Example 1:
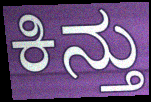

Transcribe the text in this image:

ಕಿನ್ತು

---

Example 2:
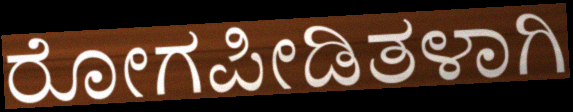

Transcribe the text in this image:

ರೋಗಪೀಡಿತಳಾಗಿ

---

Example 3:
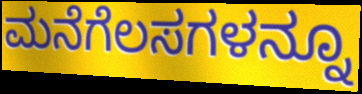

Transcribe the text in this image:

ಮನೆಗೆಲಸಗಳನ್ನೂ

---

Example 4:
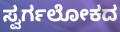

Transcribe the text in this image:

ಸ್ವರ್ಗಲೋಕದ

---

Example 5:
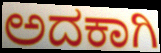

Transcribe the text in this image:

ಅದಕಾಗಿ